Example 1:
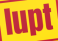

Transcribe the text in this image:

lupt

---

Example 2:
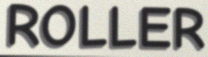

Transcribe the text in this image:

ROLLER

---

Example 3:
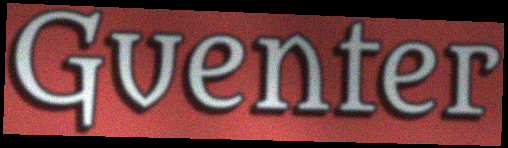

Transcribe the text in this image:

Guenter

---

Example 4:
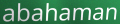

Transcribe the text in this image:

abahaman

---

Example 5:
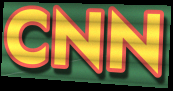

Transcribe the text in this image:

CNN